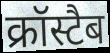
क्रॉस्टैब